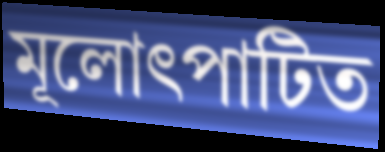
মূলোৎপাটিত